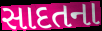
સાદતના